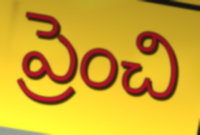
ప్రెంచి